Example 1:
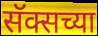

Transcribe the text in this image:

सॅक्सच्या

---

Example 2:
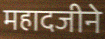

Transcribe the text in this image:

महादजीने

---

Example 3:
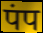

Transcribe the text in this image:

पंप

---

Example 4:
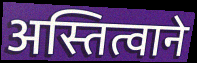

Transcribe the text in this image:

अस्तित्वाने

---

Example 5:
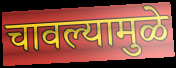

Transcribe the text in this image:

चावल्यामुळे